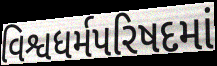
વિશ્વધર્મપરિષદમાં